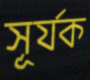
সূৰ্যক